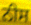
ਨੀਸ